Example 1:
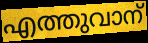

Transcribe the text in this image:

എത്തുവാന്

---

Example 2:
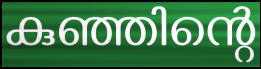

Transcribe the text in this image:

കുഞ്ഞിന്റെ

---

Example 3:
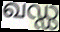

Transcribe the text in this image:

ഖഡ്ഡ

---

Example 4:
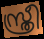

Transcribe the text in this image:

സ്ത്രീ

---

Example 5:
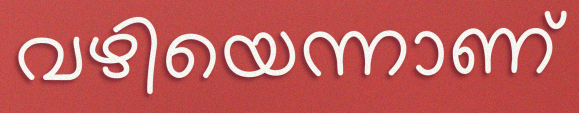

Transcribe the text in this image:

വഴിയെന്നാണ്